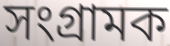
সংগ্ৰামক